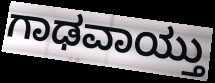
ಗಾಢವಾಯ್ತು